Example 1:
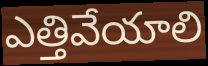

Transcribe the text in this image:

ఎత్తివేయాలి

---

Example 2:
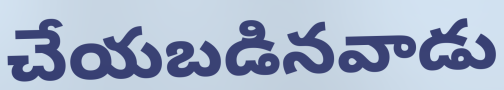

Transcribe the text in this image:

చేయబడినవాడు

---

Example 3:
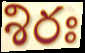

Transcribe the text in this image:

శిరః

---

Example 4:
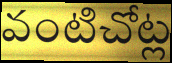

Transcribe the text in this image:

వంటిచోట్ల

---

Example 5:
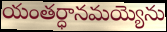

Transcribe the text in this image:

యంతర్ధానమయ్యెను